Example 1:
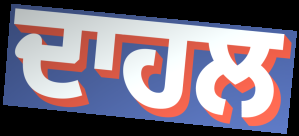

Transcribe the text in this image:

ਦਾਹਲ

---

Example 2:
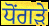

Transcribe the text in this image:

ਧੋਂਗੜੇ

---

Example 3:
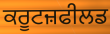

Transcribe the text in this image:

ਕਰੂਟਜ਼ਫੀਲਡ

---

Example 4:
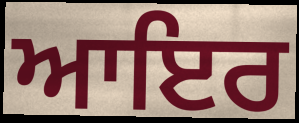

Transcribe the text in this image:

ਆਇਰ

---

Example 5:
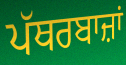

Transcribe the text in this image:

ਪੱਥਰਬਾਜ਼ਾਂ